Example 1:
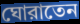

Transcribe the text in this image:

ঘোরাতেন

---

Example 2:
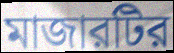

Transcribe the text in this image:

মাজারটির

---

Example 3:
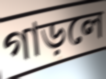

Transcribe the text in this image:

গাড়লে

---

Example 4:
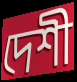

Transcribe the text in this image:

দেশী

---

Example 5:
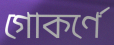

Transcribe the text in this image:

গোকর্ণে